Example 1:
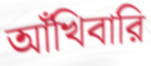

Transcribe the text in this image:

আঁখিবারি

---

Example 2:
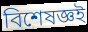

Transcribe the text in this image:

বিশেষজ্ঞই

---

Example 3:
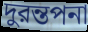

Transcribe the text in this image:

দুরন্তপনা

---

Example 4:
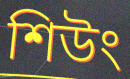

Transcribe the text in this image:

শিউং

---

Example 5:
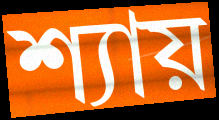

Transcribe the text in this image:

শ্যায়